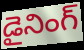
డైనింగ్